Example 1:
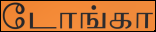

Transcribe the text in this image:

டோங்கா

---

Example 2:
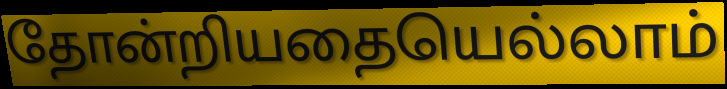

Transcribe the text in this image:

தோன்றியதையெல்லாம்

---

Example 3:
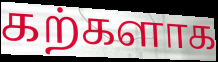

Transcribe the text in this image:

கற்களாக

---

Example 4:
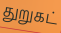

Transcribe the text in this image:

துறுகட்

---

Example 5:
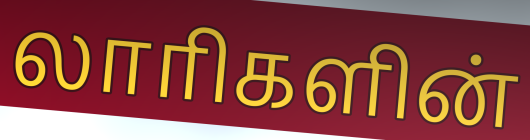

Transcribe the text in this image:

லாரிகளின்